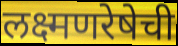
लक्ष्मणरेषेची